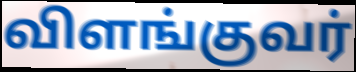
விளங்குவர்